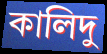
কালিদু